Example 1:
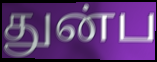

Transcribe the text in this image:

துன்ப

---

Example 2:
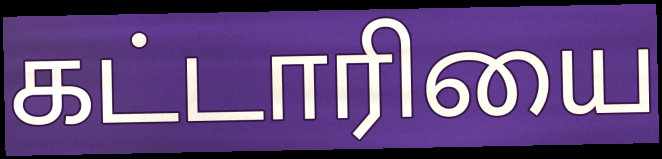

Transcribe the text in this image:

கட்டாரியை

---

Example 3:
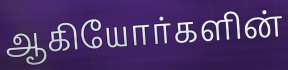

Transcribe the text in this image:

ஆகியோர்களின்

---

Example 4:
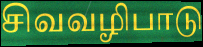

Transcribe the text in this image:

சிவவழிபாடு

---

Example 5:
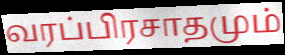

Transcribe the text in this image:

வரப்பிரசாதமும்